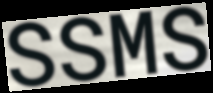
SSMS